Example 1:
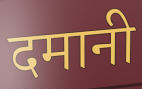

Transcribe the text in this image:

दमानी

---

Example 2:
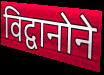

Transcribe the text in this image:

विद्वानोने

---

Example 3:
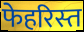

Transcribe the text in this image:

फेहरिस्‍त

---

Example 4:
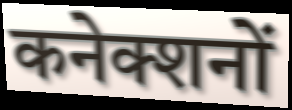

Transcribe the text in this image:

कनेक्शनों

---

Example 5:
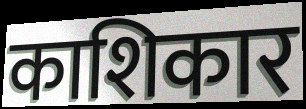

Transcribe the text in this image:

काशिकार